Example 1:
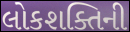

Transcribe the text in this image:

લોકશક્તિની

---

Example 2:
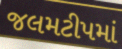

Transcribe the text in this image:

જલમટીપમાં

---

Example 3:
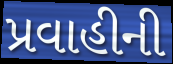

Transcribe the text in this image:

પ્રવાહીની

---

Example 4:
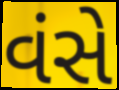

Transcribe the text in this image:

વંસે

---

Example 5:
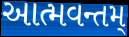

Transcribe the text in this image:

આત્મવન્તમ્